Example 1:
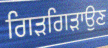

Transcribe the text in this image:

ਗਿੜਗਿੜਾਉਣ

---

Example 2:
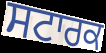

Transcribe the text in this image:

ਸਟਾਰਕ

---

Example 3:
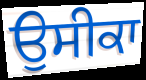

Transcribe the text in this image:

ਉਸੀਕਾ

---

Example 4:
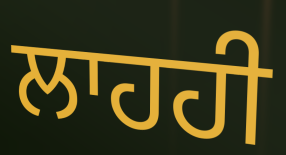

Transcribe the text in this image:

ਲਾਹਹੀ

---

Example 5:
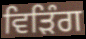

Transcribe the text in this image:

ਵਿੜਿੰਗ